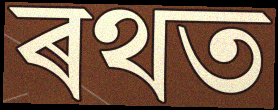
ৰথত